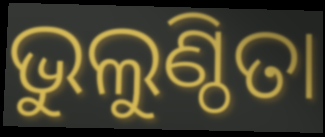
ଭୁଲୁଣ୍ଠିତା